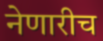
नेणारीच